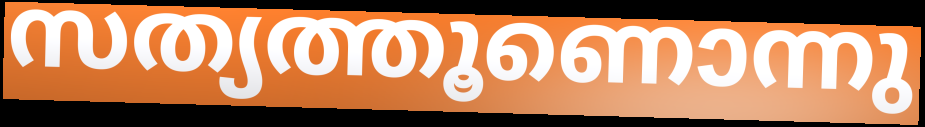
സത്യത്തൂണൊന്നു